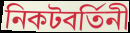
নিকটবর্তিনী